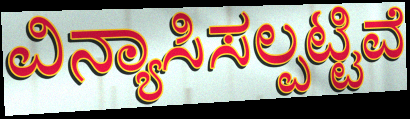
ವಿನ್ಯಾಸಿಸಲ್ಪಟ್ಟಿವೆ